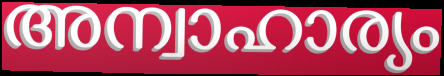
അന്വാഹാര്യം